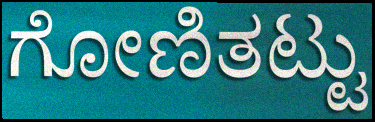
ಗೋಣಿತಟ್ಟು